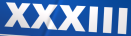
XXXIII